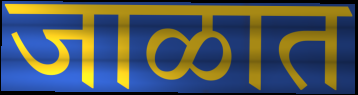
जाळात